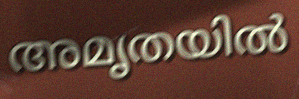
അമൃതയിൽ